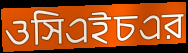
ওসিএইচএর